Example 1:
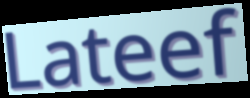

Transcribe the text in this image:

Lateef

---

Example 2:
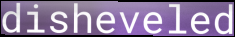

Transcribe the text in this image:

disheveled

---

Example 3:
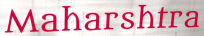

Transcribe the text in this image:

Maharshtra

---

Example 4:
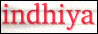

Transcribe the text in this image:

indhiya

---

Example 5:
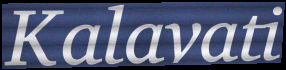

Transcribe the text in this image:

Kalavati